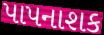
પાપનાશક